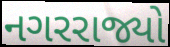
નગરરાજ્યો